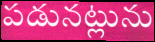
పడునట్లును